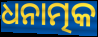
ଧନାତ୍ମକ